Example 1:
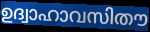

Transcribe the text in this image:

ഉദ്വാഹാവസിതൗ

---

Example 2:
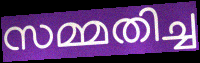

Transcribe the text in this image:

സമ്മതിച്ച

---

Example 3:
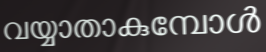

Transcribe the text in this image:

വയ്യാതാകുമ്പോൾ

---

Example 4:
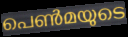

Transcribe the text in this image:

പെൺമയുടെ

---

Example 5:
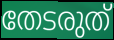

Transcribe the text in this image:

തേടരുത്